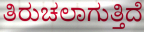
ತಿರುಚಲಾಗುತ್ತಿದೆ